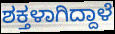
ಶಕ್ತಳಾಗಿದ್ದಾಳೆ